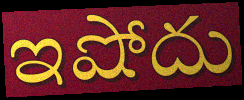
ఇషోదు